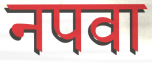
नपवा